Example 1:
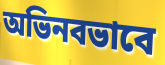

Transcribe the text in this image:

অভিনবভাবে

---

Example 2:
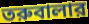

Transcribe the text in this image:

তরুবালার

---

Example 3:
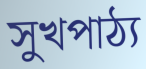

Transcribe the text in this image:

সুখপাঠ্য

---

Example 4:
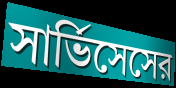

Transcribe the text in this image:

সার্ভিসেসের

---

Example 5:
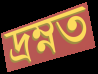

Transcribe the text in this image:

দ্রম্নত